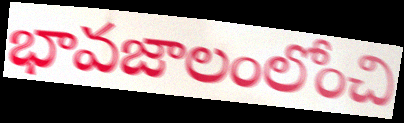
భావజాలంలోంచి